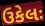
ઉકેલઃ